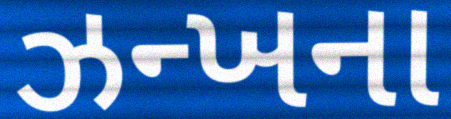
ઝન્ખના